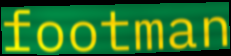
footman